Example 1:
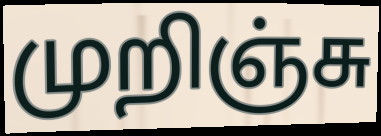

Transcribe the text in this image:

முறிஞ்சு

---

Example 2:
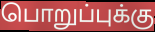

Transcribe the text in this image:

பொறுப்புக்கு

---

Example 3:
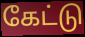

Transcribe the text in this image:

கேட்டு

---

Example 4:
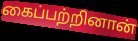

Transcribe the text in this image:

கைப்பற்றினான்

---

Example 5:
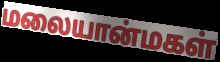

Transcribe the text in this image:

மலையான்மகள்